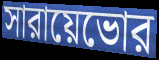
সারায়েভোর